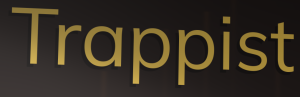
Trappist